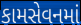
કામસેવનમાં